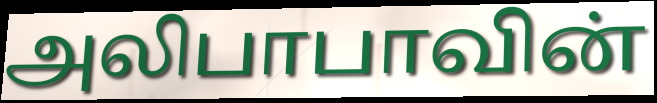
அலிபாபாவின்